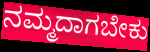
ನಮ್ಮದಾಗಬೇಕು